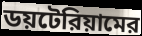
ডয়টেরিয়ামের